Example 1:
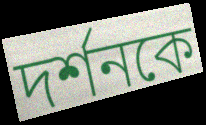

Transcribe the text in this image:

দর্শনকে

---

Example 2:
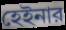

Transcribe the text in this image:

হেইনার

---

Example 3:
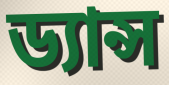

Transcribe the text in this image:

ড্যান্স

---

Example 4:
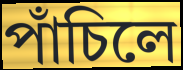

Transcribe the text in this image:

পাঁচিলে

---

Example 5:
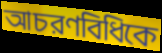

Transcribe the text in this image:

আচরণবিধিকে